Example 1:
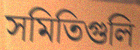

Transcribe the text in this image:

সমিতিগুলি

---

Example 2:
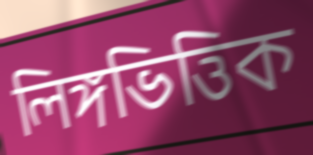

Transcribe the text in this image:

লিঙ্গভিত্তিক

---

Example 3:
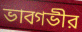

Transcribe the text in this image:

ভাবগভীর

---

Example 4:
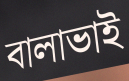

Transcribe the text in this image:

বালাভাই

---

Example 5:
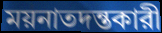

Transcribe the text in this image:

ময়নাতদন্তকারী